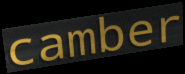
camber